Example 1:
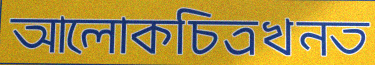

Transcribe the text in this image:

আলোকচিত্ৰখনত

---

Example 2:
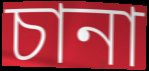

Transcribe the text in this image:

চানা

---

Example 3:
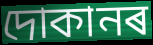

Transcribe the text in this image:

দোকানৰ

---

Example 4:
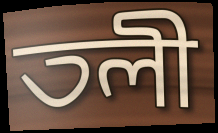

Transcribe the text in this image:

তলী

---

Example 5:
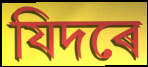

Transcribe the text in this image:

যিদৰে